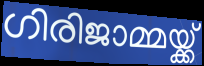
ഗിരിജാമ്മയ്ക്ക്